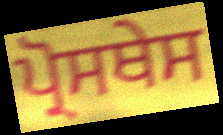
ਪ੍ਰੋਸਥੇਸ